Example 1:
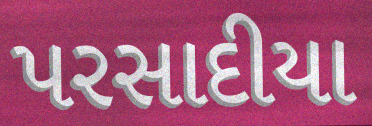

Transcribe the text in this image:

પરસાદીયા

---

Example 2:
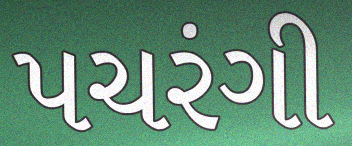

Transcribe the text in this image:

પચરંગી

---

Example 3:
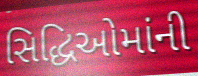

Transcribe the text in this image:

સિદ્ધિઓમાંની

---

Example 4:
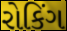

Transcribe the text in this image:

રોકિંગ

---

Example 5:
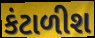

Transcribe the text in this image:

કંટાળીશ